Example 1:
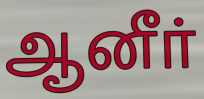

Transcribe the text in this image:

ஆனீர்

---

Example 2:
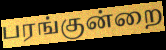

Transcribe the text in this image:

பரங்குன்றை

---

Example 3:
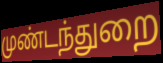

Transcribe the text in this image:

முண்டந்துறை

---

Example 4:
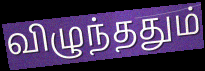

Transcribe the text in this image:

விழுந்ததும்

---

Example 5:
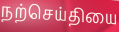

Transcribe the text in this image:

நற்செய்தியை